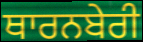
ਥਾਰਨਬੇਰੀ